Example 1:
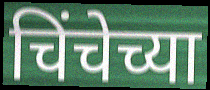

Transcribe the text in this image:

चिंचेच्या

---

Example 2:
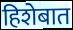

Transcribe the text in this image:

हिशेबात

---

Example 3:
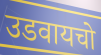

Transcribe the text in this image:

उडवायचो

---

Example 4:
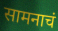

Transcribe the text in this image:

सामनाचं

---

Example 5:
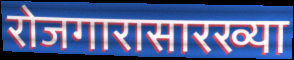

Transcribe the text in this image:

रोजगारासारख्या